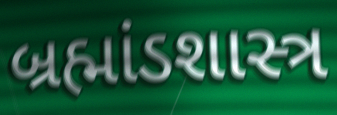
બ્રહ્માંડશાસ્ત્ર